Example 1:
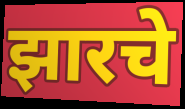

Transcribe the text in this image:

झारचे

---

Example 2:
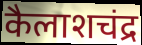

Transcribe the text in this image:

कैलाशचंद्र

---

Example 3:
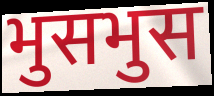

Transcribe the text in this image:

भुसभुस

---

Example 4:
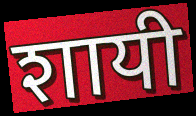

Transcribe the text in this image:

शायी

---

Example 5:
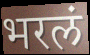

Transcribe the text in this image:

भरलं